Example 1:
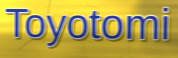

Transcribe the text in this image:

Toyotomi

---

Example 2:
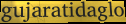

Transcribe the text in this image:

gujaratidaglo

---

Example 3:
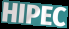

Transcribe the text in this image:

HIPEC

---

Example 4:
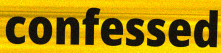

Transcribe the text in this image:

confessed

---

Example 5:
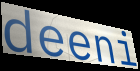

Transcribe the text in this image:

deeni